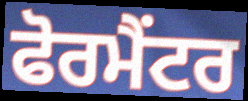
ਫੋਰਮੈਂਟਰ